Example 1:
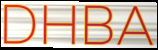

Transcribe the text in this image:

DHBA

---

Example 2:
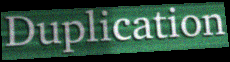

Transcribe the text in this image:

Duplication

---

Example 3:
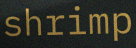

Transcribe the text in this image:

shrimp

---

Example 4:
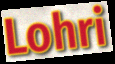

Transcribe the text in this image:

Lohri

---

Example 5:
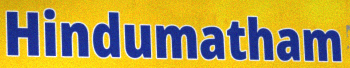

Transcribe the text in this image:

Hindumatham